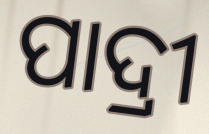
ପାଦ୍ରୀ